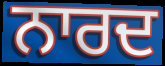
ਨਾਰਦ